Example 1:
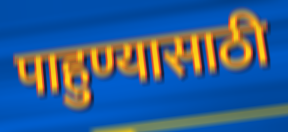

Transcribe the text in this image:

पाहुण्यासाठी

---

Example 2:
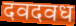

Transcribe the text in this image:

दवदवध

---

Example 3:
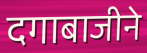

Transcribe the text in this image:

दगाबाजीने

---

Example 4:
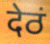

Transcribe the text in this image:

देठं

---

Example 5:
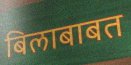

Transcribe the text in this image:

बिलाबाबत